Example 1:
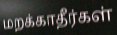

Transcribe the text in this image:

மறக்காதீர்கள்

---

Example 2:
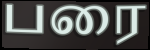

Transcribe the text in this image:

பரை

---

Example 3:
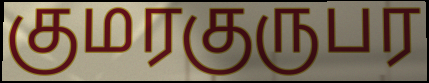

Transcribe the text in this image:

குமரகுருபர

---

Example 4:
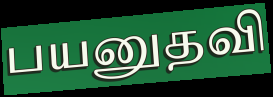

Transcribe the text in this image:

பயனுதவி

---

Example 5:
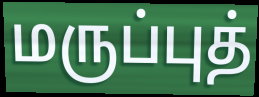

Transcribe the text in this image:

மருப்புத்